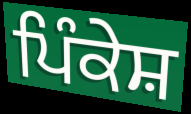
ਪਿੰਕੇਸ਼